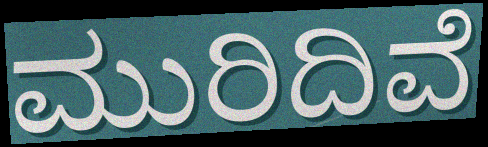
ಮುರಿದಿವೆ